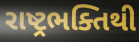
રાષ્ટ્રભક્તિથી